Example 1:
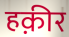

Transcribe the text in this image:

हक़ीर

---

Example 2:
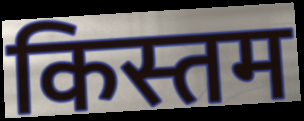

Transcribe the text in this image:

किस्तम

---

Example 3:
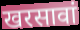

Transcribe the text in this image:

खरसावां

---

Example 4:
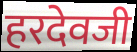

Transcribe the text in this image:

हरदेवजी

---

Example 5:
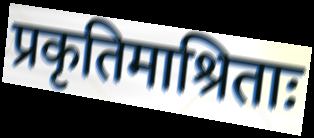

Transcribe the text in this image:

प्रकृतिमाश्रिताः